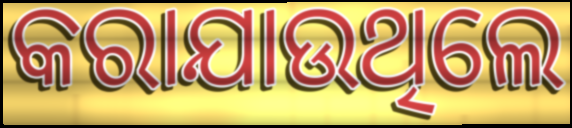
କରାଯାଉଥିଲେ